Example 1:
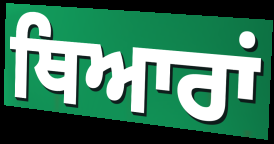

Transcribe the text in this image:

ਥਿਆਰਾਂ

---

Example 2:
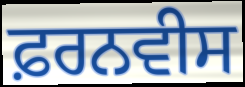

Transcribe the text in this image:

ਫ਼ਰਨਵੀਸ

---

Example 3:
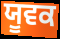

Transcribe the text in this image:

ਯੂਵਕ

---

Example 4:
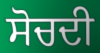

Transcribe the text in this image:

ਸੋਚਦੀ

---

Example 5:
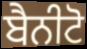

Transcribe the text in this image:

ਬੈਨੀਟੋ